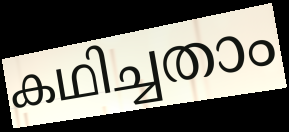
കഥിച്ചതാം